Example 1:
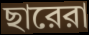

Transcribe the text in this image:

ছারেরা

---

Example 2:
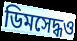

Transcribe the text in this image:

ডিমসেদ্ধও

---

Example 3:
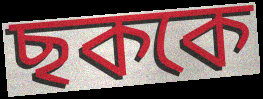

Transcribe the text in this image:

ছককে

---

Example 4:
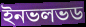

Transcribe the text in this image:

ইনভলভড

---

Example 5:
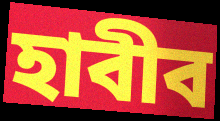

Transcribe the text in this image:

হাবীব